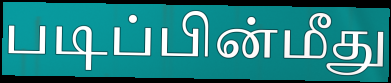
படிப்பின்மீது